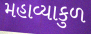
મહાવ્યાકુળ